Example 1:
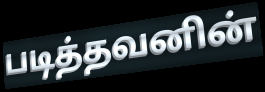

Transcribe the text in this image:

படித்தவனின்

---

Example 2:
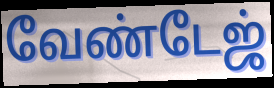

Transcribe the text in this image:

வேண்டேஜ்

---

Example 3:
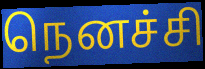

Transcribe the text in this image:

நெனச்சி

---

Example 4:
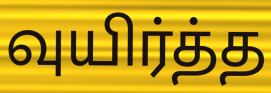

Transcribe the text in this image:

வுயிர்த்த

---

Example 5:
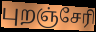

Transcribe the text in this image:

புறஞ்சேரி